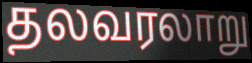
தலவரலாறு